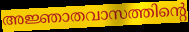
അജ്ഞാതവാസത്തിന്റെ